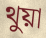
থুয়া